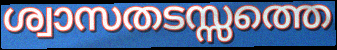
ശ്വാസതടസ്സത്തെ